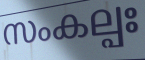
സംകല്പഃ